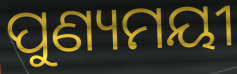
ପୁଣ୍ୟମୟୀ